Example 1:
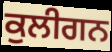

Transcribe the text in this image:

ਕੁਲੀਗਨ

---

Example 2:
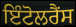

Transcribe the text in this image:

ਇੰਟੋਲਰੈਂਸ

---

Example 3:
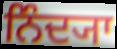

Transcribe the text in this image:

ਨਿੰਦ੍ਯਾ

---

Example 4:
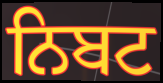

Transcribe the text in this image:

ਨਿਬਟ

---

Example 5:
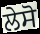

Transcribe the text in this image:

ਲੇਸੋ